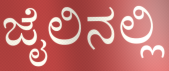
ಜೈಲಿನಲ್ಲಿ